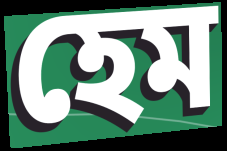
হেম